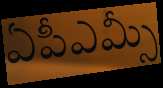
ఏపీఎమ్సీ